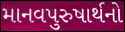
માનવપુરુષાર્થનો